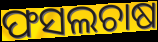
ଫସଲଚାଷ